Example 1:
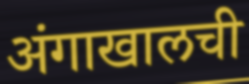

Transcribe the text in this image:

अंगाखालची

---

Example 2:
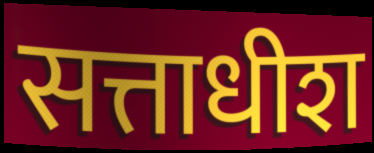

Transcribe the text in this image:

सत्ताधीश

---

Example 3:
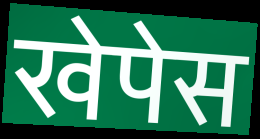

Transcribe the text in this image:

खेपेस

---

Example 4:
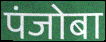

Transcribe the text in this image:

पंजोबा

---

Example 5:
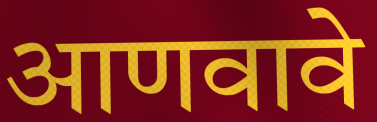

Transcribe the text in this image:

आणवावे